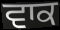
ਵਾਕ